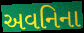
અવનિના